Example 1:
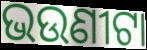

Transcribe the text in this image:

ଭଉଣୀଟା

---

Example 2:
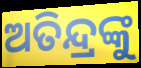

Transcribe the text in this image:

ଅତିନ୍ଦ୍ରଙ୍କୁ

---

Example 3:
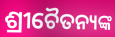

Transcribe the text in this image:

ଶ୍ରୀଚୈତନ୍ୟଙ୍କ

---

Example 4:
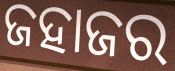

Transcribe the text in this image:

ଜହାଜର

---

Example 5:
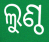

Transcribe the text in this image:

ଲୁଣ୍ଠ